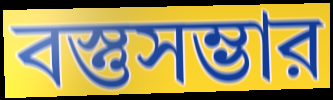
বস্তুসম্ভার